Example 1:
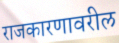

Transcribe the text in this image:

राजकारणावरील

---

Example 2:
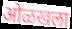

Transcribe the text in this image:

ओळखला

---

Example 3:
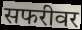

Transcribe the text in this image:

सफरीवर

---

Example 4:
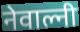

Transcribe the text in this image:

नेवाल्नी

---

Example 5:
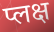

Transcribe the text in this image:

प्लक्ष